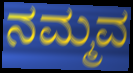
ನಮ್ಮವ